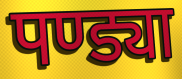
पण्ड्या